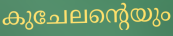
കുചേലന്റെയും